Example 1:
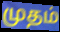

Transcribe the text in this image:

முதம்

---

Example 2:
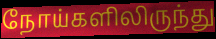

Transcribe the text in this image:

நோய்களிலிருந்து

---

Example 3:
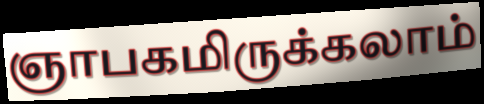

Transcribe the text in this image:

ஞாபகமிருக்கலாம்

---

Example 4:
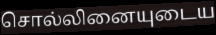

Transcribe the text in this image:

சொல்லினையுடைய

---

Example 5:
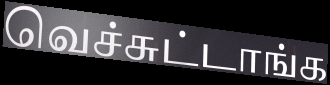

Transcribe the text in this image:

வெச்சுட்டாங்க